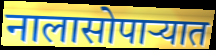
नालासोपाऱ्यात